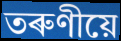
তৰুণীয়ে